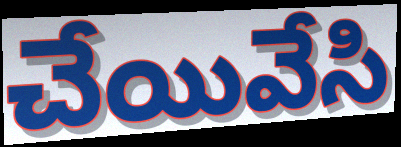
చేయివేసి